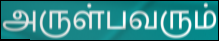
அருள்பவரும்